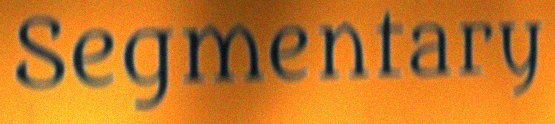
Segmentary